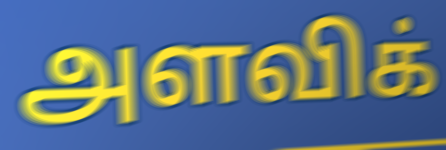
அளவிக்